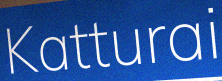
Katturai